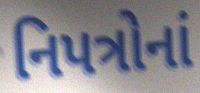
નિપત્રોનાં